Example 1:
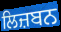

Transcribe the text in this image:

ਲਿਜ਼ਬਨ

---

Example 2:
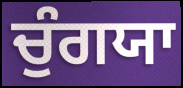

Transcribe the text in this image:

ਚੁੰਗਯਾ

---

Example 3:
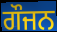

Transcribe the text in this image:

ਗੌਜਨ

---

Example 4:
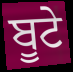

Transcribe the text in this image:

ਬੂਟੇ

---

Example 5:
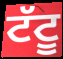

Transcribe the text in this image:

ਟੱਟੂ